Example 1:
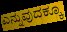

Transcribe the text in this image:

ಎನ್ನುವುದಕ್ಕೂ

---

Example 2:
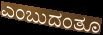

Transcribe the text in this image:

ಎಂಬುದಂತೂ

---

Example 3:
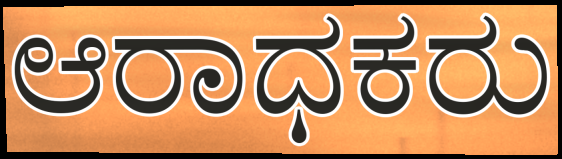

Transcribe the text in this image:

ಆರಾಧಕರು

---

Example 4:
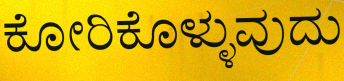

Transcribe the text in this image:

ಕೋರಿಕೊಳ್ಳುವುದು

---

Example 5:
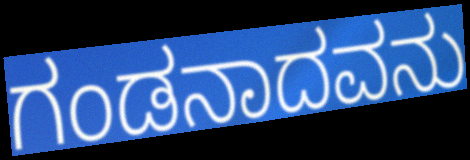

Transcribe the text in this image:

ಗಂಡನಾದವನು